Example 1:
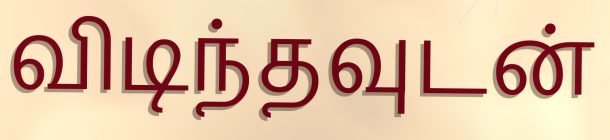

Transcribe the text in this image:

விடிந்தவுடன்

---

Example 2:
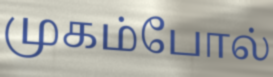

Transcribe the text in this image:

முகம்போல்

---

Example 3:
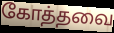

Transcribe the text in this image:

கோத்தவை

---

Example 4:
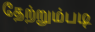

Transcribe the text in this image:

தேற்றும்படி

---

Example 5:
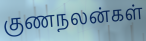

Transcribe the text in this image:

குணநலன்கள்